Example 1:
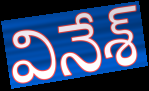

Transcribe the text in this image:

వినేశ్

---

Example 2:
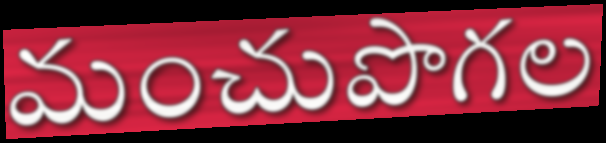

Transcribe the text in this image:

మంచుపొగల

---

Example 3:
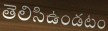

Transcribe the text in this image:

తెలిసిఉండటం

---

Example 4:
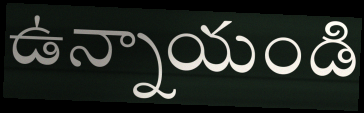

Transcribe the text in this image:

ఉన్నాయండి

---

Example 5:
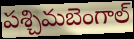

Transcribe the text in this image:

పశ్చిమబెంగాల్